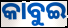
କାବୁଇ